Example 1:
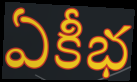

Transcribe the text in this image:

ఏకీభ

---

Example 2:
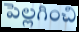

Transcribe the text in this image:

పెల్లగించి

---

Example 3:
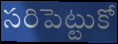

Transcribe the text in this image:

సరిపెట్టుకో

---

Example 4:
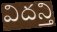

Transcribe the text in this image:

విదన్తి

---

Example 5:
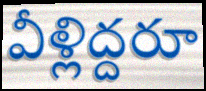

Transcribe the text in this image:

వీళ్లిద్దరూ